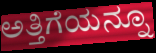
ಅತ್ತಿಗೆಯನ್ನೂ